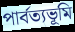
পার্বত্যভূমি